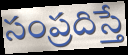
సంప్రదిస్తే